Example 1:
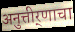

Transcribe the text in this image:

अनुत्तीर्णाचा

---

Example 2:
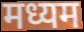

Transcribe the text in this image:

मध्यम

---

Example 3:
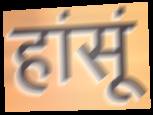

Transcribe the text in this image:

हांसूं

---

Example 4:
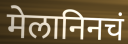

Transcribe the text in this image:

मेलानिनचं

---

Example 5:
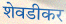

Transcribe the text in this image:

शेवडीकर